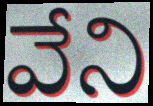
వేని